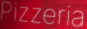
Pizzeria